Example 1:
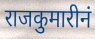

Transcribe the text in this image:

राजकुमारीनं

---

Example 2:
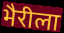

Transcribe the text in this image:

भैरीला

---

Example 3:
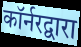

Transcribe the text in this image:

कॉर्नरद्वारा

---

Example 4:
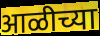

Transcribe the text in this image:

आळीच्या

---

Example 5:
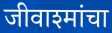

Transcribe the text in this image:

जीवाश्मांचा